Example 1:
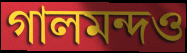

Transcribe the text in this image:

গালমন্দও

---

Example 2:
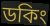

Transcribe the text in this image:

ডকিং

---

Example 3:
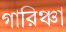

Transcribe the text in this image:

গারিঞ্চা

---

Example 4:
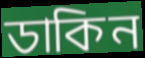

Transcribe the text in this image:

ডাকিন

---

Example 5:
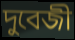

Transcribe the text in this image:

দুবেজী